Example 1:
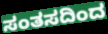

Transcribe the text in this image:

ಸಂತಸದಿಂದ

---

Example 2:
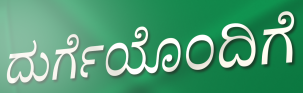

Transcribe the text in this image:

ದುರ್ಗೆಯೊಂದಿಗೆ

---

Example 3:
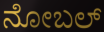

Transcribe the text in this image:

ನೋಬಲ್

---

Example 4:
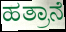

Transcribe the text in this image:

ಹತ್ರಾನೆ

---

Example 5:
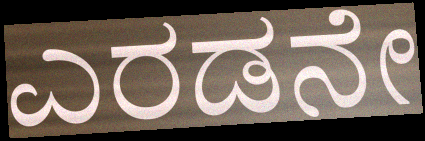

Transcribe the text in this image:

ಎರಡನೇ